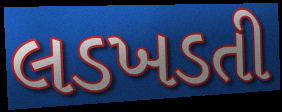
લડખડતી